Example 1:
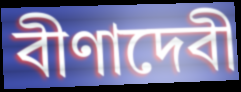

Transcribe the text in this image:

বীণাদেবী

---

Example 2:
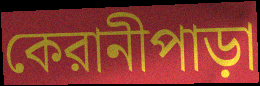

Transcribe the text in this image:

কেরানীপাড়া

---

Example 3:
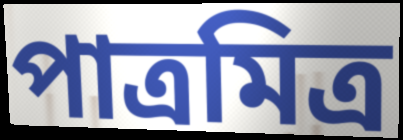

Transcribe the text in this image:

পাত্রমিত্র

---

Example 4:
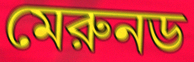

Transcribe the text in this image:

মেরুনড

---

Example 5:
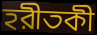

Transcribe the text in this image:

হরীতকী